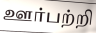
ஊர்பற்றி